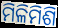
ମିଳିମିଶି